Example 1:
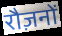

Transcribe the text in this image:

रौज़नों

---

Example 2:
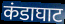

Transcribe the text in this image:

कंडाघाट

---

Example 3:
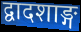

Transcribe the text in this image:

द्वादशाङ्ग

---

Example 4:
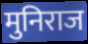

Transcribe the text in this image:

मुनिराज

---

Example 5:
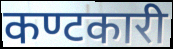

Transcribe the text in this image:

कण्टकारी